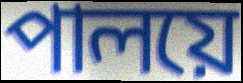
পালয়ে